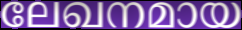
ലേഖനമായ